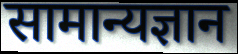
सामान्यज्ञान